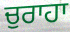
ਚੁਰਾਹਾ